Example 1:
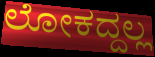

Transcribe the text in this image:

ಲೋಕದ್ದಲ್ಲ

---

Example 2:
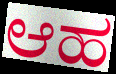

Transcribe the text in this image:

ಆಹ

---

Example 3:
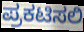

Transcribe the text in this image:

ಪ್ರಕಟಿಸಲಿ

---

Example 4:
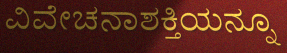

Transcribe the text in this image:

ವಿವೇಚನಾಶಕ್ತಿಯನ್ನೂ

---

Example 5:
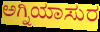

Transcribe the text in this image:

ಅಗ್ನಿಯಾಸುರ